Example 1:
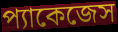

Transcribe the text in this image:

প্যাকেজেস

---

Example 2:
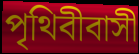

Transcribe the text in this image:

পৃথিবীবাসী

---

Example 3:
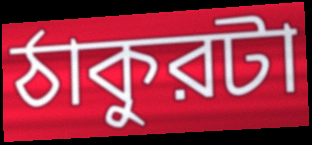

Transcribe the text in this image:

ঠাকুরটা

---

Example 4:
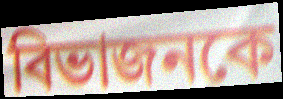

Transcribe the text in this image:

বিভাজনকে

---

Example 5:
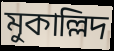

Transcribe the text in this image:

মুকাল্লিদ